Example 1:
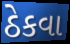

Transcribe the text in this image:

ઠેકવા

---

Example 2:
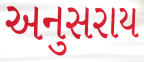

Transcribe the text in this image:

અનુસરાય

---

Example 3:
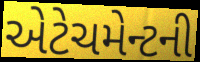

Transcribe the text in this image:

એટેચમેન્ટની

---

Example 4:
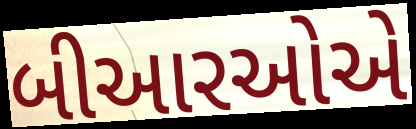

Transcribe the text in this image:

બીઆરઓએ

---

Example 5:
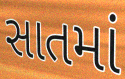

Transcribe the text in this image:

સાતમાં